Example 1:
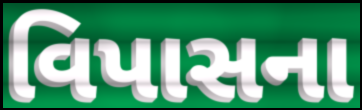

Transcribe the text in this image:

વિપાસના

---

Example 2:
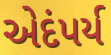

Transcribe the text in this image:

એદંપર્ય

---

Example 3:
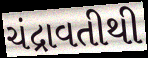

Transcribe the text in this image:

ચંદ્રાવતીથી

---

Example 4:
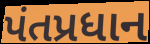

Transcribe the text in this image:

પંતપ્રધાન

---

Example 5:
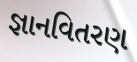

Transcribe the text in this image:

જ્ઞાનવિતરણ